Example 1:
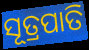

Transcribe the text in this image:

ସୂତ୍ରପାତି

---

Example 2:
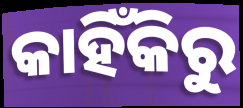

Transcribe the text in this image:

କାହିଁକିରୁ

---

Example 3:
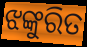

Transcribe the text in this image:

ଝଙ୍କୁରିତ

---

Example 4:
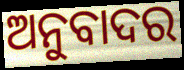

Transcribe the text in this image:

ଅନୁବାଦର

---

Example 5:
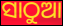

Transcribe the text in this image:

ସାଠୁଆ